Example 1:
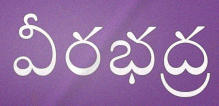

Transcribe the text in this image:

వీరభద్ర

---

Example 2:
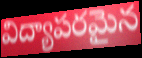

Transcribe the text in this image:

విద్యాపరమైన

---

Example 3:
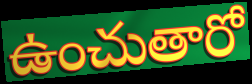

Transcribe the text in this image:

ఉంచుతారో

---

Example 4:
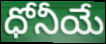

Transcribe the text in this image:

ధోనీయే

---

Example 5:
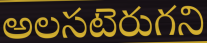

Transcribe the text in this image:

అలసటెరుగని